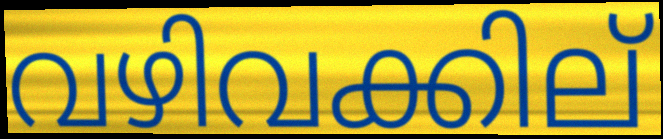
വഴിവക്കില്